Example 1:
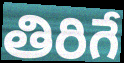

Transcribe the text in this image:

తిరిగే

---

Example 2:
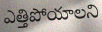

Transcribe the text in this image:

ఎత్తిపోయాలని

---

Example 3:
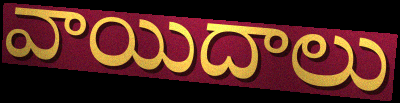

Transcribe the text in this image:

వాయిదాలు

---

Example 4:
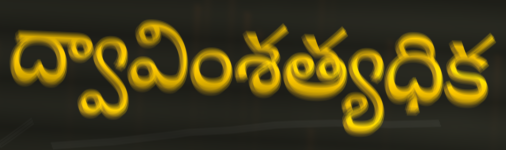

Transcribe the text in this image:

ద్వావింశత్యధిక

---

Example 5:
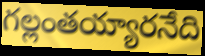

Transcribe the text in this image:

గల్లంతయ్యారనేది